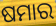
ଷମାର